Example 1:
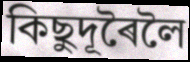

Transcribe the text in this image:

কিছুদূৰৈলৈ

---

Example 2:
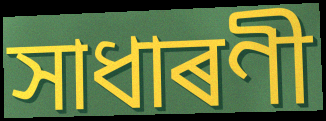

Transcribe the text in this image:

সাধাৰণী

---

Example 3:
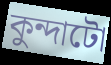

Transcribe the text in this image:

কুন্দাটো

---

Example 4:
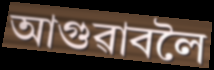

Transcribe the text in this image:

আগুৱাবলৈ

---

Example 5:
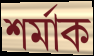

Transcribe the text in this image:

শৰ্মাক